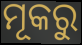
ମୂକରୁ